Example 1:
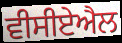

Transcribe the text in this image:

ਵੀਸੀਏਐਲ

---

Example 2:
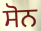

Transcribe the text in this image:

ਸੋਨ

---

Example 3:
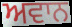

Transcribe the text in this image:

ਅਵਾਨ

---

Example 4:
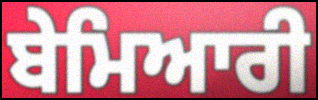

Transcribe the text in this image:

ਬੇਮਿਆਰੀ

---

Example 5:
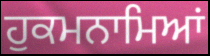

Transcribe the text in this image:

ਹੁਕਮਨਾਮਿਆਂ